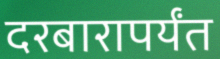
दरबारापर्यंत